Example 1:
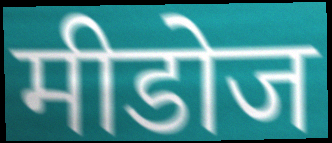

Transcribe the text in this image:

मीडोज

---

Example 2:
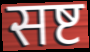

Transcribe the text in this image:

सष्ट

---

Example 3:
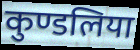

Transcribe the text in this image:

कुण्डलिया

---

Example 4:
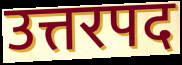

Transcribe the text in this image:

उत्तरपद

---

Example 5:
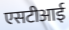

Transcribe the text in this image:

एसटीआई